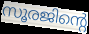
സൂരജിന്റെ